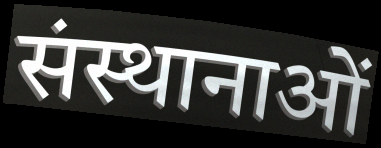
संस्थानाओं